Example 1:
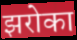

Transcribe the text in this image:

झरोका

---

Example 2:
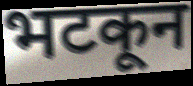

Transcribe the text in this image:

भटकून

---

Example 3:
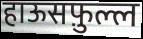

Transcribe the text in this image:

हाऊसफ़ुल्ल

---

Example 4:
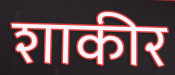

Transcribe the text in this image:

शाकीर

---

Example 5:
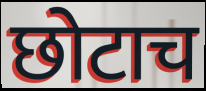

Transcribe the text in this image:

छोटाच